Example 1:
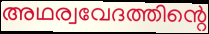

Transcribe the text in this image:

അഥര്വവേദത്തിന്റെ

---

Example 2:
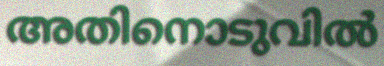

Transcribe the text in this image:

അതിനൊടുവിൽ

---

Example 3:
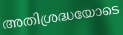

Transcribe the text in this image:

അതിശ്രദ്ധയോടെ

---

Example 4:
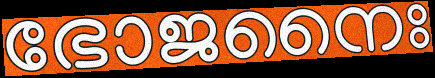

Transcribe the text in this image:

ഭോജനൈഃ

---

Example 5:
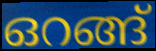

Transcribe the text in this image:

ഒറങ്ങ്